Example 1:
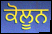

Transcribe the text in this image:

ਕੋਲੂਨ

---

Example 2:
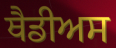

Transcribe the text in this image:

ਥੈਡੀਅਸ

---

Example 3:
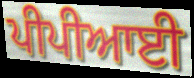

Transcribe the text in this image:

ਪੀਪੀਆਈ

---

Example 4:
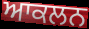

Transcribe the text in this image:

ਆਕਲਨ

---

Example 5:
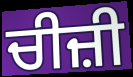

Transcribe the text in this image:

ਚੀਜ਼ੀ